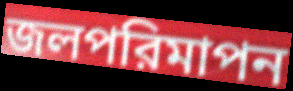
জলপরিমাপন